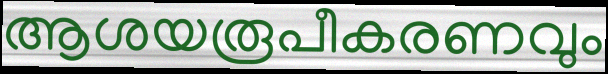
ആശയരൂപീകരണവും